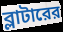
ব্লাটারের